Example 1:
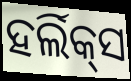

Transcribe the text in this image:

ହର୍ଲିକ୍‌ସ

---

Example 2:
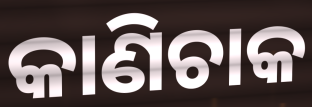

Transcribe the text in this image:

କାଣିଚାକ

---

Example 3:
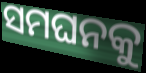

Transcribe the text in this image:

ସମଘନକୁ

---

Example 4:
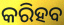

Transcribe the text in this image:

କରିହବ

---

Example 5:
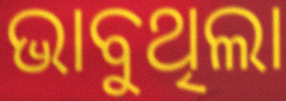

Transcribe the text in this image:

ଭାବୁଥିଲା